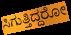
ಸಿಗುತ್ತಿದ್ದರೋ